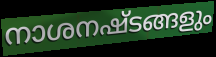
നാശനഷ്ടങ്ങളും